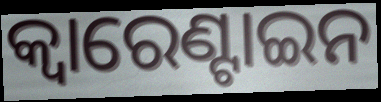
କ୍ୱାରେଣ୍ଟାଇନ